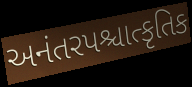
અનંતરપશ્ચાત્કૃતિક